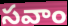
సవాం